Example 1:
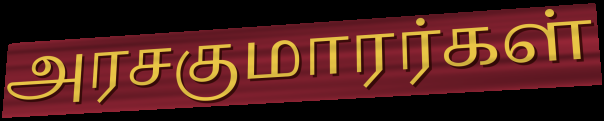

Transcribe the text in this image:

அரசகுமாரர்கள்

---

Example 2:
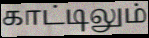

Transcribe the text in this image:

காட்டிலும்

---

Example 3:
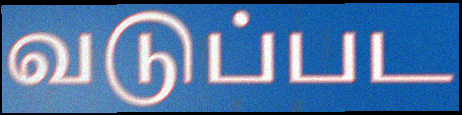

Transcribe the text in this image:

வடுப்பட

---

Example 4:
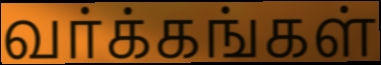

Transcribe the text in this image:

வர்க்கங்கள்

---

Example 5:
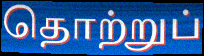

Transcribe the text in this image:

தொற்றுப்